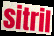
sitril